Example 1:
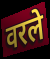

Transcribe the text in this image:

वरले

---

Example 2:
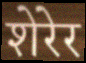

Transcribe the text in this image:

शेरेर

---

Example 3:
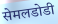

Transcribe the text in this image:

सेमलडोडी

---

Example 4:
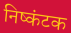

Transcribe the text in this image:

निष्कंटक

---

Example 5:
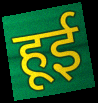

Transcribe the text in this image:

हूई